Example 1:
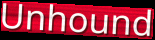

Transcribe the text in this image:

Unhound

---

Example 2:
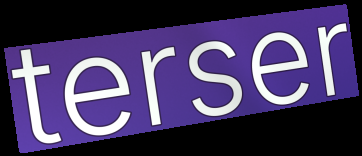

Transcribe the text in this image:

terser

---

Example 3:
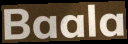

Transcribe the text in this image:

Baala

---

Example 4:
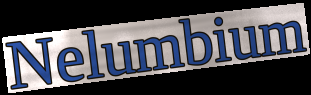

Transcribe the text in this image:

Nelumbium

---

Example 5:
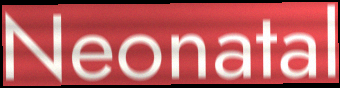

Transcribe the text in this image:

Neonatal